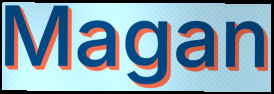
Magan